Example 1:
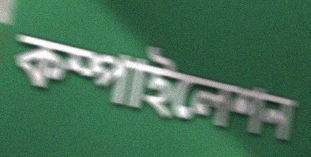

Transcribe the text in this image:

কম্পাইলেশন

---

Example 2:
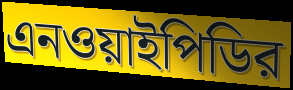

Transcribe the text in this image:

এনওয়াইপিডির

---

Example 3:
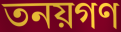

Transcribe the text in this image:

তনয়গণ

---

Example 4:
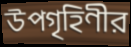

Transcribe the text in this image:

উপগৃহিণীর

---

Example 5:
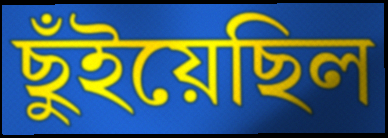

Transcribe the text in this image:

ছুঁইয়েছিল